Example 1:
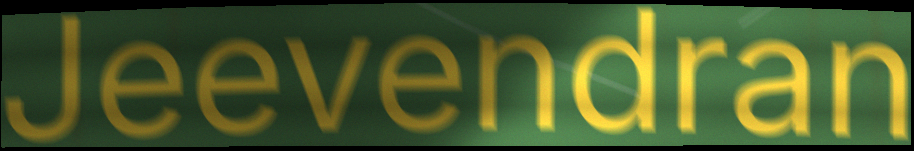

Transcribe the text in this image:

Jeevendran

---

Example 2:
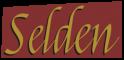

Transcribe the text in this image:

Selden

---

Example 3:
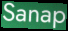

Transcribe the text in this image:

Sanap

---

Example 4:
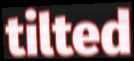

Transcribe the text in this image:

tilted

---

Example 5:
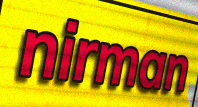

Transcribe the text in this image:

nirman